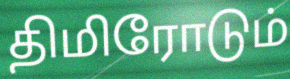
திமிரோடும்